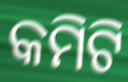
କମିଟି